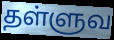
தள்ளுவ